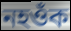
নহওঁক